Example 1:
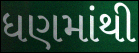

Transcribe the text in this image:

ધણમાંથી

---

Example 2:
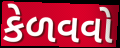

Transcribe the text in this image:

કેળવવો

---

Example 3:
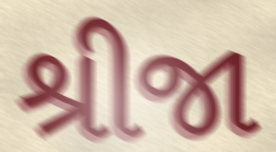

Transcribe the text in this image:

શ્રીજા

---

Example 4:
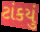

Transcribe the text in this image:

ટાંકયું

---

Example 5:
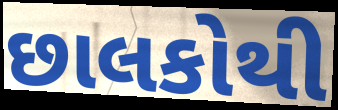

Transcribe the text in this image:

છાલકોથી